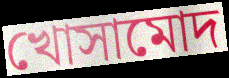
খোসামোদ